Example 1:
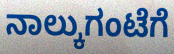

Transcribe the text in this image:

ನಾಲ್ಕುಗಂಟೆಗೆ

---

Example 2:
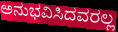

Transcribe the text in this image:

ಅನುಭವಿಸಿದವರಲ್ಲ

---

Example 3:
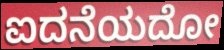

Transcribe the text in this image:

ಐದನೆಯದೋ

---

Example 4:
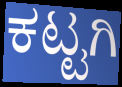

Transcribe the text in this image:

ಕಟ್ಟಗಿ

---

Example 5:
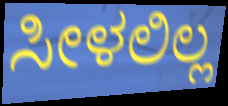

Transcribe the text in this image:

ಸೀಳಲಿಲ್ಲ